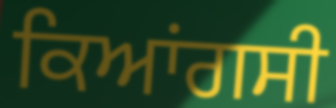
ਕਿਆਂਗਸੀ